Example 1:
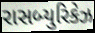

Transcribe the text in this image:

રાસબ્યુરિકેઝ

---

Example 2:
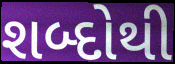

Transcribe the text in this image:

શબ્દોથી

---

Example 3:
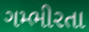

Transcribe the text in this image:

ગમ્ભીરતા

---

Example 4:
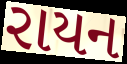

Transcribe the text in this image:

રાયન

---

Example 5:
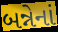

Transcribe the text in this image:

બન્નેનાં